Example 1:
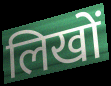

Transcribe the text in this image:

लिखों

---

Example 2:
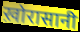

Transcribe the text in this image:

ख़ोरासानी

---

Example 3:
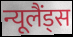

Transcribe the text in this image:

न्यूलैंड्स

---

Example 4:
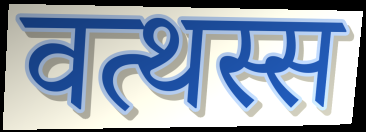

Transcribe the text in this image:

वत्थस्स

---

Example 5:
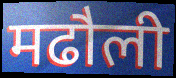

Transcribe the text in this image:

मढौली